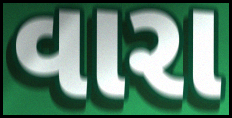
વારા